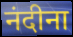
नंदीना